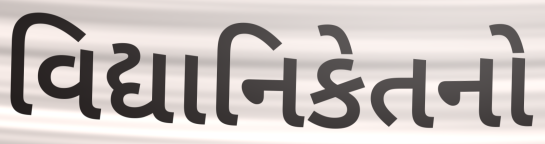
વિદ્યાનિકેતનો